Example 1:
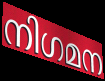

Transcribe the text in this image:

നിഗമന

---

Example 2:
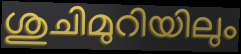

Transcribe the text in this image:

ശുചിമുറിയിലും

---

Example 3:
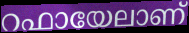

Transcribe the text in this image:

റഫായേലാണ്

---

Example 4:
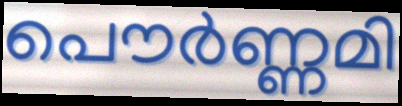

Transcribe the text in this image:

പൌർണ്ണമി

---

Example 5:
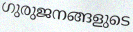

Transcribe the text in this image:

ഗുരുജനങ്ങളുടെ